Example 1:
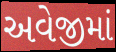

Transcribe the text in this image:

અવેજીમાં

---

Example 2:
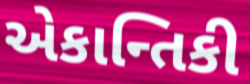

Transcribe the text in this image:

એકાન્તિકી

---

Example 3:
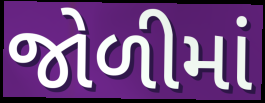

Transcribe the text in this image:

જોળીમાં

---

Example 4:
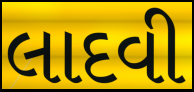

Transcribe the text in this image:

લાદવી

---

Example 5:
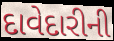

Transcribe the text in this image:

દાવેદારીની